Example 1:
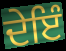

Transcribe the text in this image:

ਦੇਇੰ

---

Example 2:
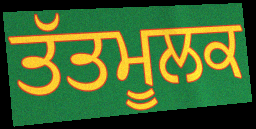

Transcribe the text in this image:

ਤੱਤਮੂਲਕ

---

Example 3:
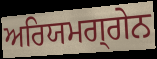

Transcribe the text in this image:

ਅਰਿਯਮਗ੍ਗੇਨ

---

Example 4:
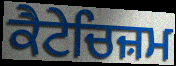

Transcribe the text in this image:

ਕੈਟੇਚਿਜ਼ਮ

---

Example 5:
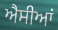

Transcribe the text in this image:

ਐਸੀਆਂ